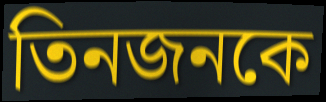
তিনজনকে